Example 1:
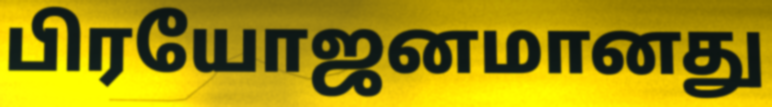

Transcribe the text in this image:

பிரயோஜனமானது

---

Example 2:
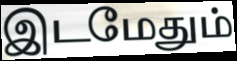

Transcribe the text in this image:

இடமேதும்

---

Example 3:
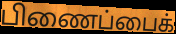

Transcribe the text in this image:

பிணைப்பைக்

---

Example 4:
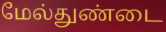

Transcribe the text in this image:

மேல்துண்டை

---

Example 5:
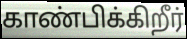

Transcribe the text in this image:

காண்பிக்கிறீர்